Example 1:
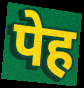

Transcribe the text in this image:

पेह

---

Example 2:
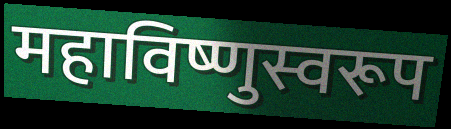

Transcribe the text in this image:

महाविष्णुस्वरूप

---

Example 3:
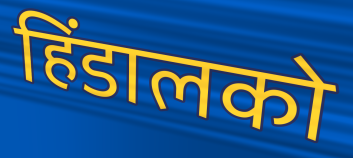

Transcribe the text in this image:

हिंडालको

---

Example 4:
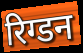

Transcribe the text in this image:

रिग्डन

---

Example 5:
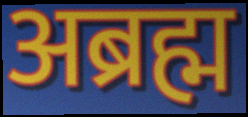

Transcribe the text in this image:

अब्रह्म